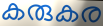
കരുകര